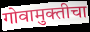
गोवामुक्तीचा